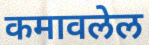
कमावलेल